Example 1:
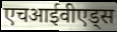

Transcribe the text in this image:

एचआईवीएड्स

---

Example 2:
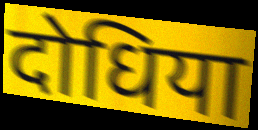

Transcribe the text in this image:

दोधिया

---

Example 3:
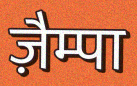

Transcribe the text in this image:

ज़ैम्पा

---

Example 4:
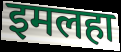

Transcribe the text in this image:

इमलहा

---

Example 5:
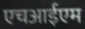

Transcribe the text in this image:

एचआईएम